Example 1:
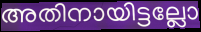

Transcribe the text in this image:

അതിനായിട്ടല്ലോ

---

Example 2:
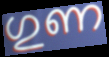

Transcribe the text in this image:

ഗുണ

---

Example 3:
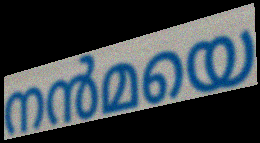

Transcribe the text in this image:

നൻമയെ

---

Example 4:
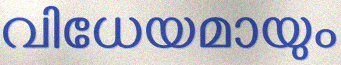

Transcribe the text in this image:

വിധേയമായും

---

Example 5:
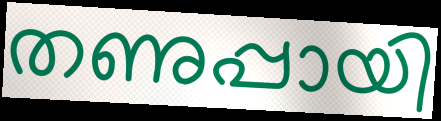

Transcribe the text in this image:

തണുപ്പായി